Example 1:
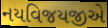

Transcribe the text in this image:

નયવિજયજીએ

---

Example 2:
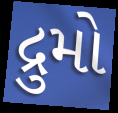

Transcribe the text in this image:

દ્રુમો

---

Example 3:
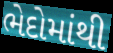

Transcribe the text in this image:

ભેદોમાંથી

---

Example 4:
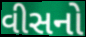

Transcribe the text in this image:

વીસનો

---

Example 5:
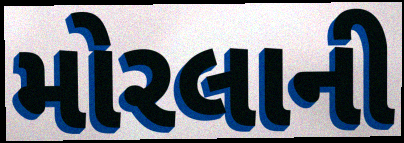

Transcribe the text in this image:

મોરલાની